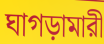
ঘাগড়ামারী